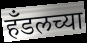
हॅंडलच्या